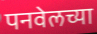
पनवेलच्या